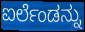
ಐರ್ಲೆಂಡನ್ನು